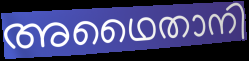
അഥൈതാനി